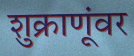
शुक्राणूंवर